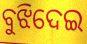
ବୁଝିଦେଇ